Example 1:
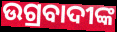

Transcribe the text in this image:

ଉଗ୍ରବାଦୀଙ୍କ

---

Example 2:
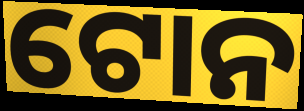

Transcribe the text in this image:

ଟୋନ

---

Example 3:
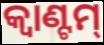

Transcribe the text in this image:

କ୍ଵାଣ୍ଟମ୍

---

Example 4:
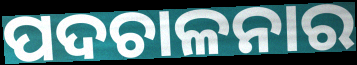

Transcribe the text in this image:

ପଦଚାଳନାର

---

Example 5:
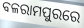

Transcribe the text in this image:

ବଳରାମପୁରରେ